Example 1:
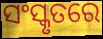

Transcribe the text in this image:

ସଂସ୍କୃତରେ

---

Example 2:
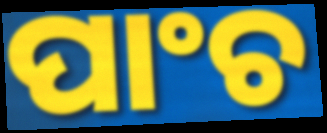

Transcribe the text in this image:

ପାଂଚ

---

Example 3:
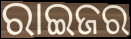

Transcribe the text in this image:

ରାଇଜର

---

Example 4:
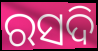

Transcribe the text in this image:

ରସଦି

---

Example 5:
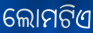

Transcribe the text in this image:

ଲୋମଟିଏ